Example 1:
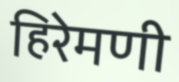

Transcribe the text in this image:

हिरेमणी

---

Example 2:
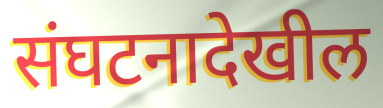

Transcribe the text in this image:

संघटनादेखील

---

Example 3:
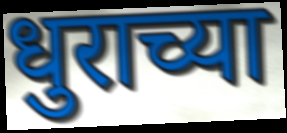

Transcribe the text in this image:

धुराच्या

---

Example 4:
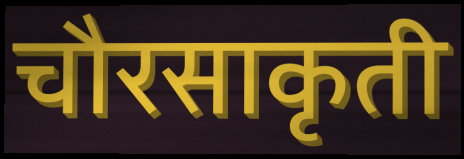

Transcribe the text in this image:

चौरसाकृती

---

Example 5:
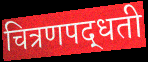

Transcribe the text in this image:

चित्रणपद्धती